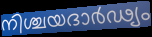
നിശ്ചയദാർഢ്യം